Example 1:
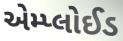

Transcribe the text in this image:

એમ્પ્લોઈડ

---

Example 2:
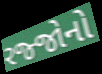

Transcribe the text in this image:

રજ્જોનો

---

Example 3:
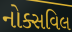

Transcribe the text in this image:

નોક્સવિલ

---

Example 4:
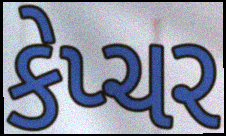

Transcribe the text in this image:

કેપ્ચર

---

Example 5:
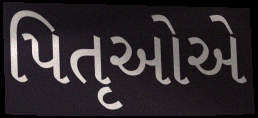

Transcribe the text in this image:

પિતૃઓએ